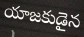
యాజకుడైన